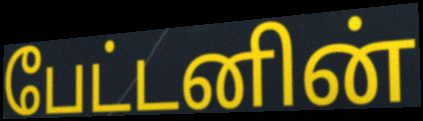
பேட்டனின்